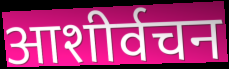
आशीर्वचन